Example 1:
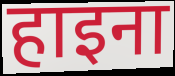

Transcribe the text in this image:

हाइना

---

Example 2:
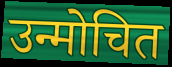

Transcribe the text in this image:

उन्मोचित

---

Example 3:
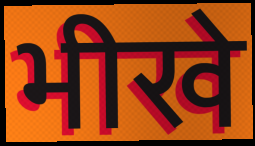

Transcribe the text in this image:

भीखे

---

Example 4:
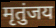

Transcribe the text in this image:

मृतुंजय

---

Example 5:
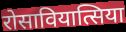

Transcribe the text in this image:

रोसावियात्सिया